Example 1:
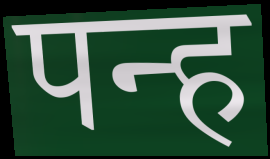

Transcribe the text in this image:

पन्ह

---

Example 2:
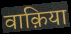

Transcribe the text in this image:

वाक़िया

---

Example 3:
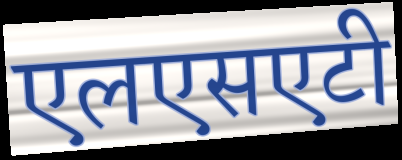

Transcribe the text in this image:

एलएसएटी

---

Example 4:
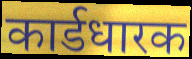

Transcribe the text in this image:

कार्डधारक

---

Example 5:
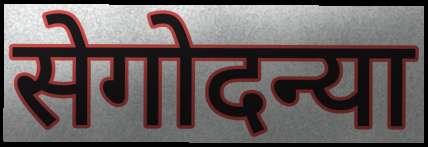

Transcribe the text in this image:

सेगोदन्या